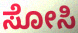
ಸೋಸಿ